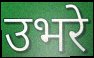
उभरे